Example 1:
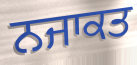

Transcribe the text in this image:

ਨਜਾਕਤ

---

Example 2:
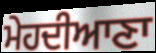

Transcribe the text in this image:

ਮੇਹਦੀਆਣਾ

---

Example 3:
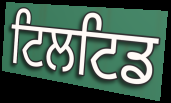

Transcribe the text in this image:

ਟਿਲਟਿਡ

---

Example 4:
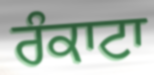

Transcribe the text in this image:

ਰੰਕਾਟਾ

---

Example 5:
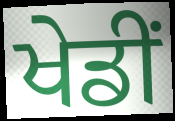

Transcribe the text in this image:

ਖੇਡੀਂ